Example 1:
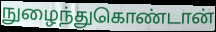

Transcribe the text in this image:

நுழைந்துகொண்டான்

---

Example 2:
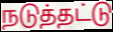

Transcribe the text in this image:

நடுத்தட்டு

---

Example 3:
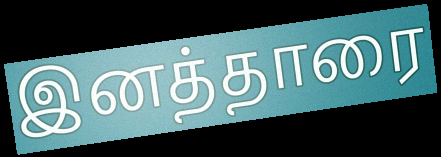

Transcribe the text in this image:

இனத்தாரை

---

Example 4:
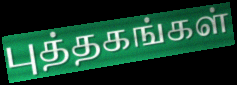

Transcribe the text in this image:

புத்தகங்கள்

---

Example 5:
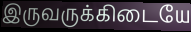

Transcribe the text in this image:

இருவருக்கிடையே